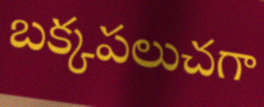
బక్కపలుచగా